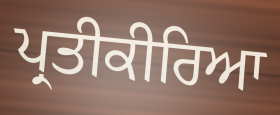
ਪ੍ਰਤੀਕੀਰਿਆ